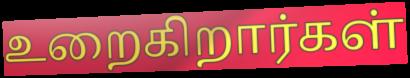
உறைகிறார்கள்